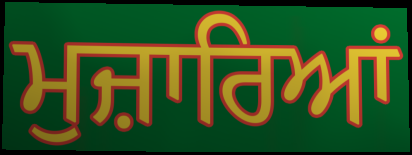
ਮੁਜ਼ਾਰਿਆਂ